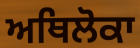
ਅਥਿਲੋਕਾ